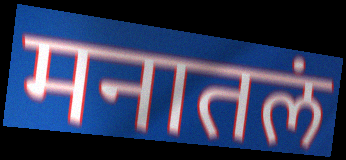
मनातलं